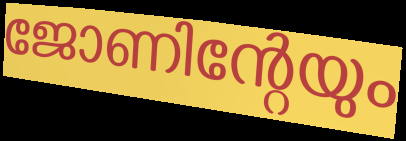
ജോണിന്റേയും